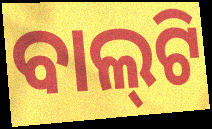
ବାଲ୍‍ଟି